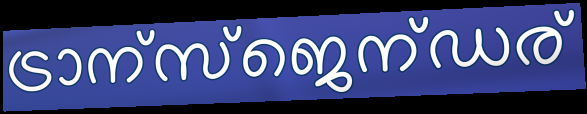
ട്രാന്സ്ജെന്ഡര്